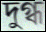
দুগ্ধ